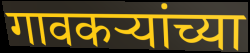
गावकर्‍यांच्या